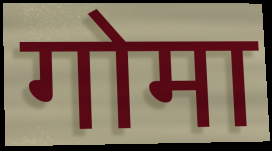
गोमा